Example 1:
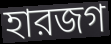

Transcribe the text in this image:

হারজগ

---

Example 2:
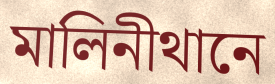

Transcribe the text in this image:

মালিনীথানে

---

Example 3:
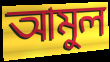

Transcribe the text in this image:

আমুল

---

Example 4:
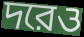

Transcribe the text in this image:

দরেও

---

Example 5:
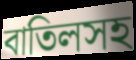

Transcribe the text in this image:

বাতিলসহ